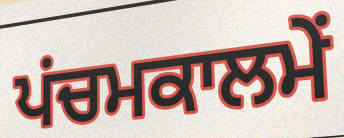
ਪਂਚਮਕਾਲਮੇਂ